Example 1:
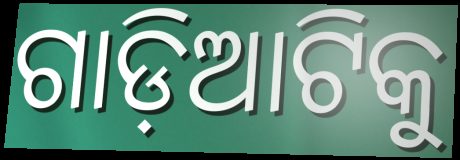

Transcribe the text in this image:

ଗାଡ଼ିଆଟିକୁ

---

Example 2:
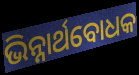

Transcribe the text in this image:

ଭିନ୍ନାର୍ଥବୋଧକ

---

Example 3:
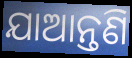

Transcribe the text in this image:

ଯାଆନ୍ତଣି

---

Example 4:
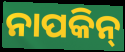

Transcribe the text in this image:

ନାପକିନ୍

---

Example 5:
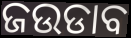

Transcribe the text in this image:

ଜଉଡାବ